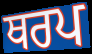
ਥਰਪ